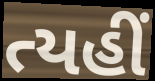
ત્યહીં